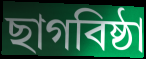
ছাগবিষ্ঠা